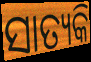
ସାତ୍ଯକି